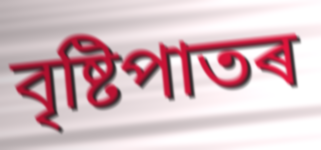
বৃষ্টিপাতৰ